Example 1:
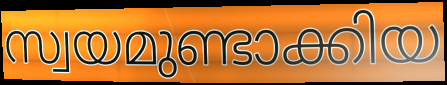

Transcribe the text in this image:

സ്വയമുണ്ടാക്കിയ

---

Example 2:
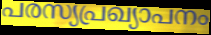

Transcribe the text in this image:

പരസ്യപ്രഖ്യാപനം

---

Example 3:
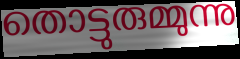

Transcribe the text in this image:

തൊട്ടുരുമ്മുന്നു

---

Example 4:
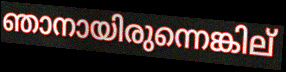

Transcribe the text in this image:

ഞാനായിരുന്നെങ്കില്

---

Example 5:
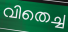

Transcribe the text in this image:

വിതെച്ച